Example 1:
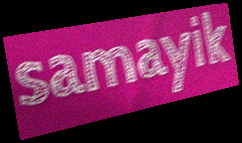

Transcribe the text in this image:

samayik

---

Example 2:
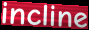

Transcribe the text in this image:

incline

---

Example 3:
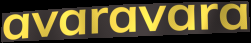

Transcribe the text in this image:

avaravara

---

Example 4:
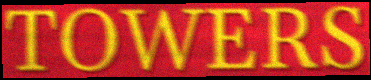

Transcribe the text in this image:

TOWERS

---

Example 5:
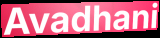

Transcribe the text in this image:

Avadhani